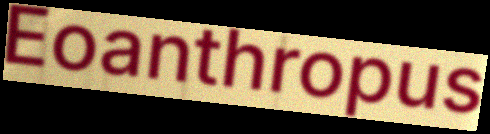
Eoanthropus